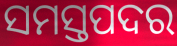
ସମସ୍ତପଦର